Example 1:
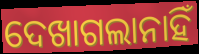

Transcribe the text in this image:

ଦେଖାଗଲାନାହିଁ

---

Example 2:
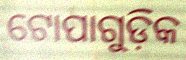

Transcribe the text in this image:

ଟୋପାଗୁଡ଼ିକ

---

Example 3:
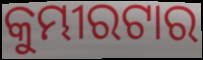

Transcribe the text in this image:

କୁମ୍ଭୀରଟାର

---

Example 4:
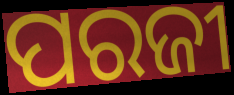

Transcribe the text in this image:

ପରଜୀ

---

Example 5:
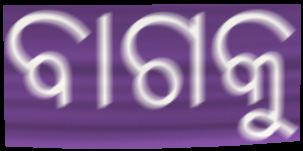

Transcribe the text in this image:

ବାଗକୁ